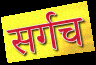
सर्गच